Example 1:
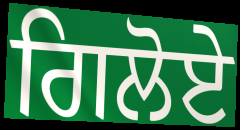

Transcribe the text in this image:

ਗਿਲੋਏ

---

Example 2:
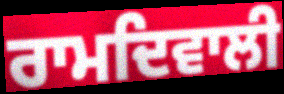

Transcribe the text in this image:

ਰਾਮਦਿਵਾਲੀ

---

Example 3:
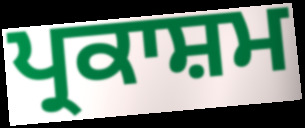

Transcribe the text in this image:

ਪ੍ਰਕਾਸ਼ਮ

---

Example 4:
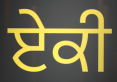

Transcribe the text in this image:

ਏਕੀ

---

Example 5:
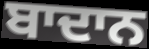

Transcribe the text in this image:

ਬਾਦਾਨ